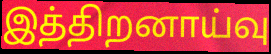
இத்திறனாய்வு